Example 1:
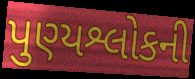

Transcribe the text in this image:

પુણ્યશ્લોકની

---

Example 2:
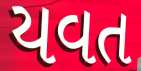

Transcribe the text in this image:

યવત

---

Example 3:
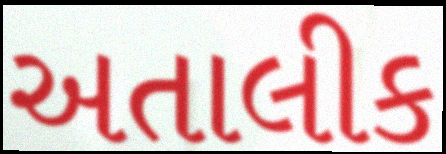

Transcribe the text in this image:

અતાલીક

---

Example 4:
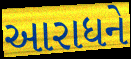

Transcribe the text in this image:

આરાધને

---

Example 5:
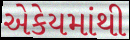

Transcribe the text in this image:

એકેયમાંથી